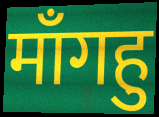
माँगहु